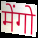
मेंगो